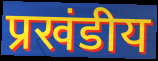
प्रखंडीय